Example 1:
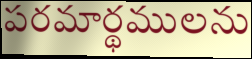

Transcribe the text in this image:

పరమార్థములను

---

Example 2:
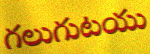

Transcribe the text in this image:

గలుగుటయు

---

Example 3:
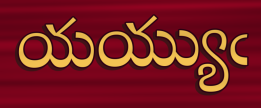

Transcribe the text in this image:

యయ్యుఁ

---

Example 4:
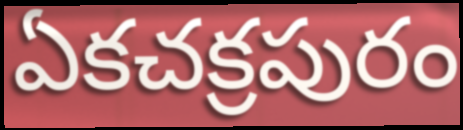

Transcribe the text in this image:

ఏకచక్రపురం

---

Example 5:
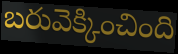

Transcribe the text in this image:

బరువెక్కించింది